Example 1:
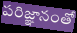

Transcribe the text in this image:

పరిజ్ఞానంతో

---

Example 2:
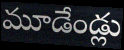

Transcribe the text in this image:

మూడేండ్లు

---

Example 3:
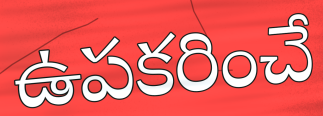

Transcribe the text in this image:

ఉపకరించే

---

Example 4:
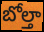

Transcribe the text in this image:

బోల్తా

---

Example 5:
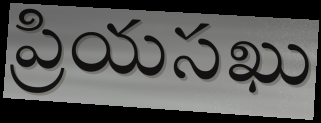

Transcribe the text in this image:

ప్రియసఖు